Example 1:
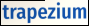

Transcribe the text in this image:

trapezium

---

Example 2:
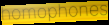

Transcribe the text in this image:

homophones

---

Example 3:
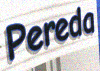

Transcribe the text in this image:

Pereda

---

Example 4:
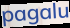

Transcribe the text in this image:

pagalu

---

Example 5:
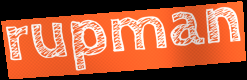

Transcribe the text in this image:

rupman